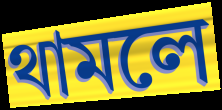
থামলে